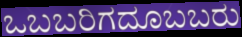
ಒಬಬರಿಗದೂಬಬರು